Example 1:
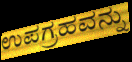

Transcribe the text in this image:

ಉಪಗ್ರಹವನ್ನು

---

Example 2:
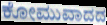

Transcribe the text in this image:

ಕೋಮುವಾದದ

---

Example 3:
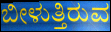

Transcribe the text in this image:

ಬೀಳುತ್ತಿರುವ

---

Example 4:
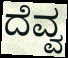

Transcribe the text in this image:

ದೆವ್ವ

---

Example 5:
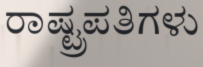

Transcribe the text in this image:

ರಾಷ್ಟ್ರಪತಿಗಳು